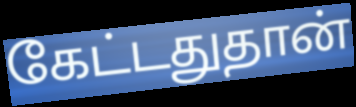
கேட்டதுதான்